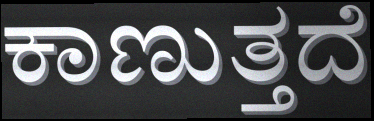
ಕಾಣುತ್ತದೆ